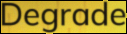
Degrade